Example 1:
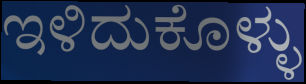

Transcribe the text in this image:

ಇಳಿದುಕೊಳ್ಳು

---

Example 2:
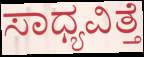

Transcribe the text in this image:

ಸಾಧ್ಯವಿತ್ತೆ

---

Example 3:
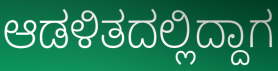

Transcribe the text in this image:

ಆಡಳಿತದಲ್ಲಿದ್ದಾಗ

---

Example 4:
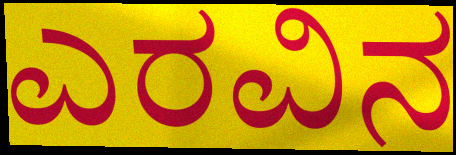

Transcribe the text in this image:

ಎರವಿನ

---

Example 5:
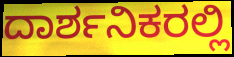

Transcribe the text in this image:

ದಾರ್ಶನಿಕರಲ್ಲಿ